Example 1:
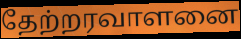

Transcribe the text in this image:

தேற்றரவாளனை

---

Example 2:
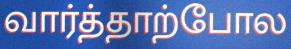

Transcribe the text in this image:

வார்த்தாற்போல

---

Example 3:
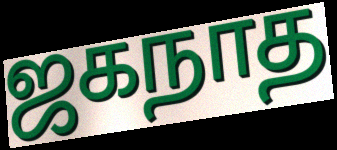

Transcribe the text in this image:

ஜகநாத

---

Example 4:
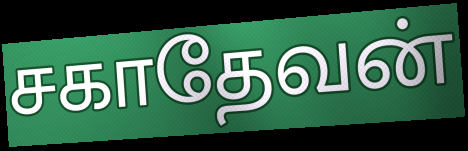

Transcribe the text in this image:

சகாதேவன்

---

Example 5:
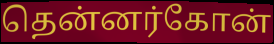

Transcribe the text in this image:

தென்னர்கோன்